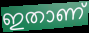
ഇതാണ്